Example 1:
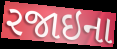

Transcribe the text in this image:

રજાઇના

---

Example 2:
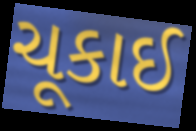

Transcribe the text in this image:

ચૂકાઈ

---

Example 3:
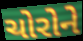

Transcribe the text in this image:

ચોરોને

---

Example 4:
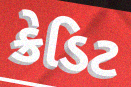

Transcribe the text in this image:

ક્રેડિટ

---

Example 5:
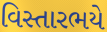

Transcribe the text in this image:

વિસ્તારભયે